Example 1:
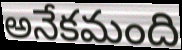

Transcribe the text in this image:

అనేకమంది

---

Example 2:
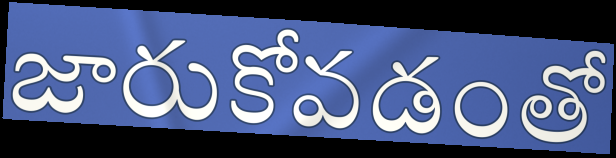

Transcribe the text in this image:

జారుకోవడంతో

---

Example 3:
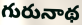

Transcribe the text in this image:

గురునాథ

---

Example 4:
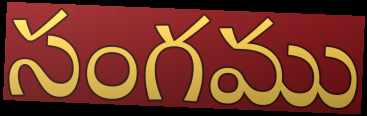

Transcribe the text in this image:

సంగము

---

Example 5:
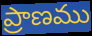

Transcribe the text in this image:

ప్రాణము